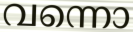
വന്നൊ